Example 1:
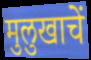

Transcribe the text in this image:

मुलुखाचें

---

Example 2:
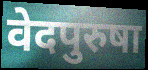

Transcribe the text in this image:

वेदपुरुषा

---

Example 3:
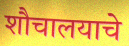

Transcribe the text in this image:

शौचालयाचे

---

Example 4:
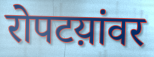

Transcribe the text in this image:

रोपटय़ांवर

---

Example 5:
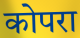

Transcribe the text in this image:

कोपरा